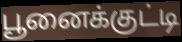
பூனைக்குட்டி